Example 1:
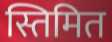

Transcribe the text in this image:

स्तिमित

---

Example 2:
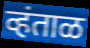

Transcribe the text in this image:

व्हंताळ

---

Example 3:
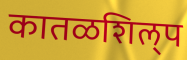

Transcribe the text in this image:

कातळशिल्प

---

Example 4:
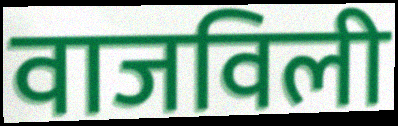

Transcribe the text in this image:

वाजविली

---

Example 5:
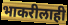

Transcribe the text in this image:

भाकरीलाही